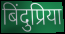
बिंदुप्रिया